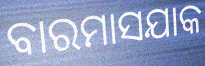
ବାରମାସଯାକ